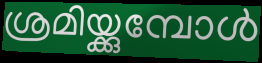
ശ്രമിയ്ക്കുമ്പോൾ